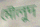
মৌলুদ